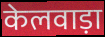
केलवाड़ा